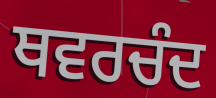
ਥਵਰਚੰਦ